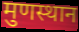
मुणस्थान